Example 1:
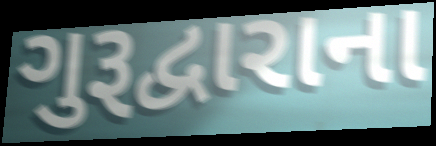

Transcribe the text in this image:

ગુરૂદ્વારાના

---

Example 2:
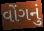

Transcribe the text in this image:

વોંગનું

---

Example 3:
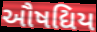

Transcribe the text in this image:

ઔષદ્યિય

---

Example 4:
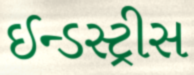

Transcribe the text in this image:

ઈન્ડસ્ટ્રીસ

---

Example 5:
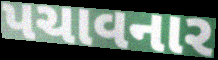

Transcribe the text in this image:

પચાવનાર